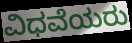
ವಿಧವೆಯರು